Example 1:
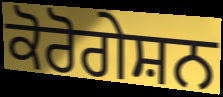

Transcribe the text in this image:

ਕੋਰੋਗੇਸ਼ਨ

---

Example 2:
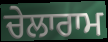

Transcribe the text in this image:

ਚੇਲਾਰਾਮ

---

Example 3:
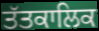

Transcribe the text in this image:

ਤੱਤਕਾਲਿਕ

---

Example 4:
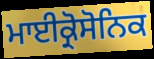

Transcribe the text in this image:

ਮਾਈਕ੍ਰੋਸੋਨਿਕ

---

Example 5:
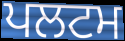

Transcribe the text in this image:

ਪਲਟਮ